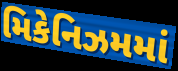
મિકેનિઝમમાં